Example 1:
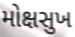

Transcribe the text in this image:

મોક્ષસુખ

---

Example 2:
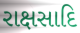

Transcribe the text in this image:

રાક્ષસાદિ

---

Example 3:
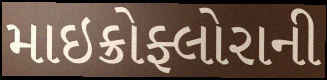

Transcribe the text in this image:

માઇક્રોફ્લોરાની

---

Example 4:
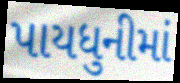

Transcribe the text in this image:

પાયધુનીમાં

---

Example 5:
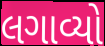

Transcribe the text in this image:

લગાવ્યો